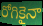
రోగికైనా